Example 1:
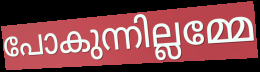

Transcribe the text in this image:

പോകുന്നില്ലമ്മേ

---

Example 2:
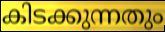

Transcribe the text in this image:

കിടക്കുന്നതും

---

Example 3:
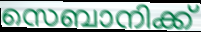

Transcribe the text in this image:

സെബാനിക്ക്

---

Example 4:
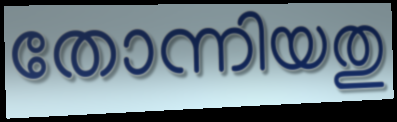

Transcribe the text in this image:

തോന്നിയതു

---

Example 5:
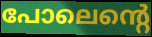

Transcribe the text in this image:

പോലെന്റെ